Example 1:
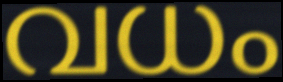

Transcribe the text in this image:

വധം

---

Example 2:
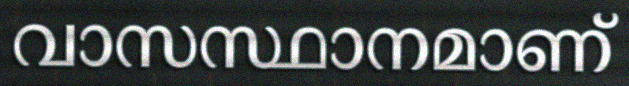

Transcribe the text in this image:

വാസസ്ഥാനമാണ്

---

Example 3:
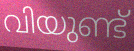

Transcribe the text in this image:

വിയുണ്ട്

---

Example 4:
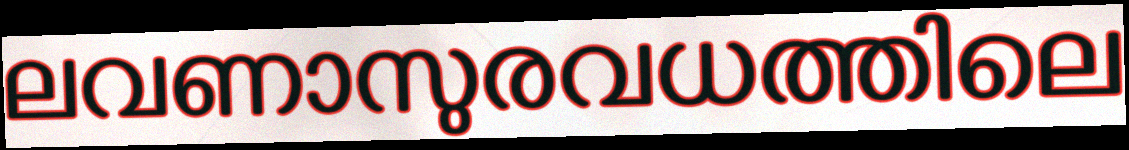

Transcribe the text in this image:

ലവണാസുരവധത്തിലെ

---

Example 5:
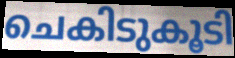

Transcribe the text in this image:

ചെകിടുകൂടി